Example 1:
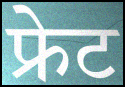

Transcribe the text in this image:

फ्रेट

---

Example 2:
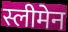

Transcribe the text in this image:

स्लीमेन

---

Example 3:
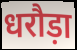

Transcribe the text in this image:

धरौड़ा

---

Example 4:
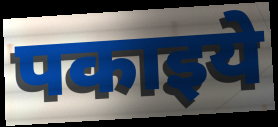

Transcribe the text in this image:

पकाइये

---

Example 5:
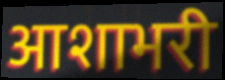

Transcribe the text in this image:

आशाभरी